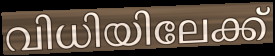
വിധിയിലേക്ക്